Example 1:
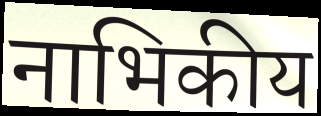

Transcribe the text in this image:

नाभिकीय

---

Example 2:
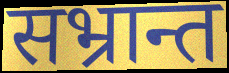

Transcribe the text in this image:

सभ्रान्त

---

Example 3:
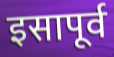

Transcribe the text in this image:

इसापूर्व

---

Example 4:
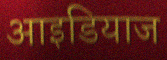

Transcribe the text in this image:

आइडियाज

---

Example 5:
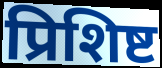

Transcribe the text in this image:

प्रिशिष्ट